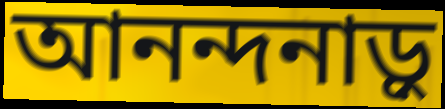
আনন্দনাড়ু